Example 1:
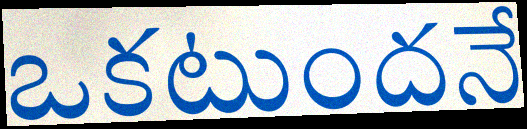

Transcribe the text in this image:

ఒకటుందనే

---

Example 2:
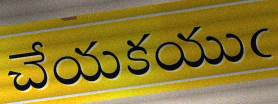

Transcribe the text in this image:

చేయకయుఁ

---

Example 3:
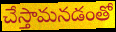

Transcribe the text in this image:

చేస్తామనడంతో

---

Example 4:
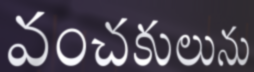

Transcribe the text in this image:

వంచకులును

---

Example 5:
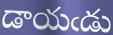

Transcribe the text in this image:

డాయఁడు